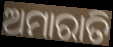
ଅମାରାତି